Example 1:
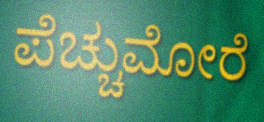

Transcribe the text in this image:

ಪೆಚ್ಚುಮೋರೆ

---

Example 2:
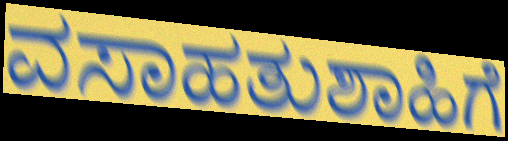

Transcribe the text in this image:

ವಸಾಹತುಶಾಹಿಗೆ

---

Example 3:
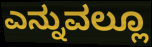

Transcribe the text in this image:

ಎನ್ನುವಲ್ಲೂ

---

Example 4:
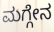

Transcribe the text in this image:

ಮಗ್ಗೇನ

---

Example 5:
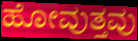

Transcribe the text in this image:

ಹೋವುತ್ತವು